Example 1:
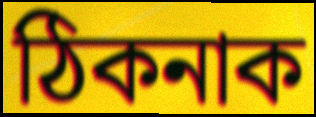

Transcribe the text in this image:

ঠিকনাক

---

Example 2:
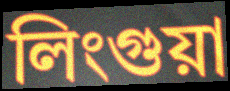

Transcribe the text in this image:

লিংগুয়া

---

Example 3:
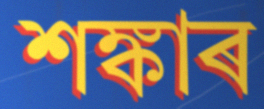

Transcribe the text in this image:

শঙ্কাৰ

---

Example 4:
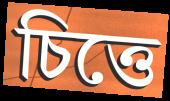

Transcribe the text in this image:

চিত্তে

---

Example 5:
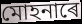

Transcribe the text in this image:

মোহনাৰে